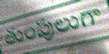
తుంపులుగా